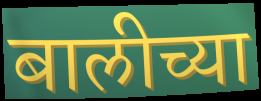
बालीच्या